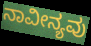
ನಾವೀನ್ಯವು